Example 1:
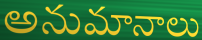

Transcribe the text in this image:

అనుమానాలు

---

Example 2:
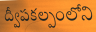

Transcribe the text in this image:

ద్వీపకల్పంలోని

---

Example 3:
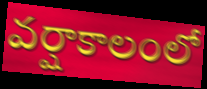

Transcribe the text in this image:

వర్షాకాలంలో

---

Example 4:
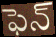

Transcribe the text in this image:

ఫెన్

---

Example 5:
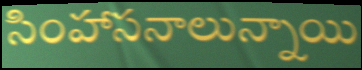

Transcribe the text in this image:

సింహాసనాలున్నాయి